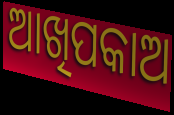
ଆଖିପକାଅ